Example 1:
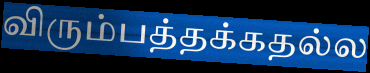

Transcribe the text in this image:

விரும்பத்தக்கதல்ல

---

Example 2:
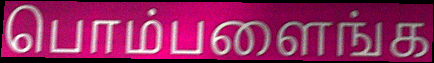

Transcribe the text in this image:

பொம்பளைங்க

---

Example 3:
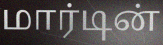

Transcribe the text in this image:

மார்டின்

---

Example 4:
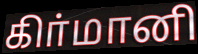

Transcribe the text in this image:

கிர்மானி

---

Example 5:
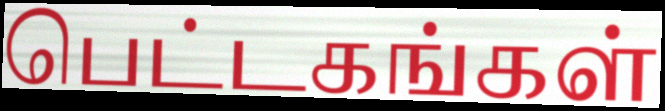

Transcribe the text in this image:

பெட்டகங்கள்